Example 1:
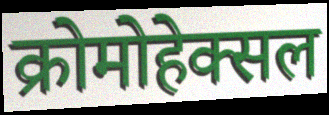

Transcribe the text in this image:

क्रोमोहेक्सल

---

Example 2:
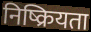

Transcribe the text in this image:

निष्क्रियता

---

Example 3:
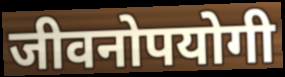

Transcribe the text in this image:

जीवनोपयोगी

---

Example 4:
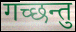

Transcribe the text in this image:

गच्छन्तु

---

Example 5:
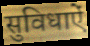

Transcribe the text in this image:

सुविधाऐं